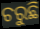
ଚରୁଛି